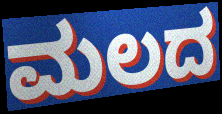
ಮಲದ